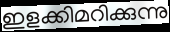
ഇളക്കിമറിക്കുന്നു